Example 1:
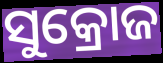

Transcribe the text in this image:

ସୁକ୍ରୋଜ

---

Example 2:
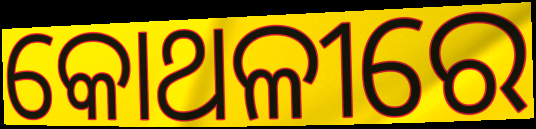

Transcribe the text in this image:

କୋଥଳୀରେ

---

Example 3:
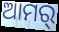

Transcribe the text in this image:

ଆମର୍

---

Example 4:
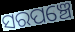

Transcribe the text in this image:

ସରପଞ୍ଚେ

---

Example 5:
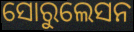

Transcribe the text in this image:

ସୋରୁଲେସନ